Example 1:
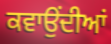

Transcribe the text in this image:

ਕਵਾਉਂਦੀਆਂ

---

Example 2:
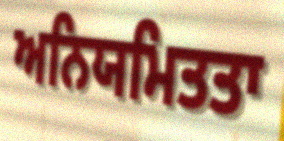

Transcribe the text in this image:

ਅਨਿਯਮਿਤਤਾ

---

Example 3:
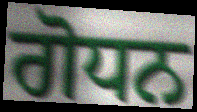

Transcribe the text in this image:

ਗੋਧਨ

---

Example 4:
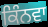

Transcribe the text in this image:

ਕਿੰਨਵਾ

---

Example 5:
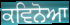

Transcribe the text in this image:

ਕਵਿਨੋਆ